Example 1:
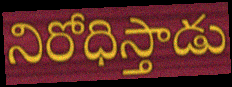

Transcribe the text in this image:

నిరోధిస్తాడు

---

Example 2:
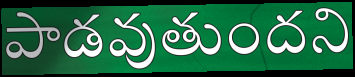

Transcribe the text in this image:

పాడవుతుందని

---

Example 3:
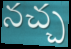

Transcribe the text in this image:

నచ్చ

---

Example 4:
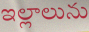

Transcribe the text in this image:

ఇల్లాలును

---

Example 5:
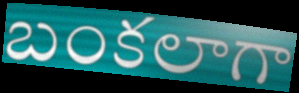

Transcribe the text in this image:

బంకలాగా